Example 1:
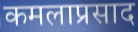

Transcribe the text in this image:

कमलाप्रसाद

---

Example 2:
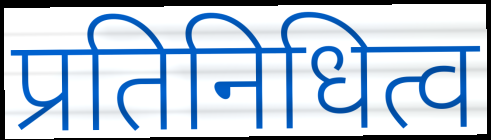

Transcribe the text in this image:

प्रतिनिधित्व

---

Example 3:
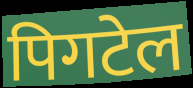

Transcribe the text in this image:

पिगटेल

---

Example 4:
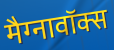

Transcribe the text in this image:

मैग्नावॉक्स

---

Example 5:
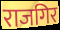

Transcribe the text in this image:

राजगिर